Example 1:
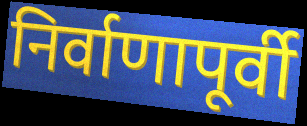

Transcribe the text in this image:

निर्वाणापूर्वी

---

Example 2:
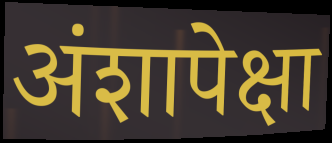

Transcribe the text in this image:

अंशापेक्षा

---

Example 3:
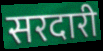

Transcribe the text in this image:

सरदारी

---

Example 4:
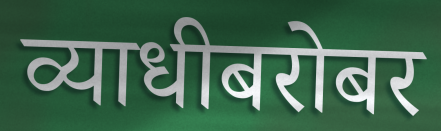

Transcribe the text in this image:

व्याधीबरोबर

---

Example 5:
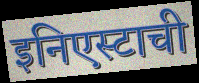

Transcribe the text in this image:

इनिएस्टाची